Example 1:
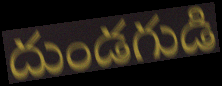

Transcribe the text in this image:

దుండగుడి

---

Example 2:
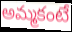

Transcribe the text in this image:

అమ్మకంటే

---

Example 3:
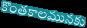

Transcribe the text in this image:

కొంతకాలమునకు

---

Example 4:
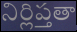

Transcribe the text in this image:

నిర్లిప్తతా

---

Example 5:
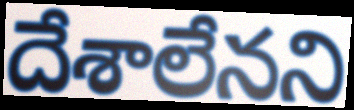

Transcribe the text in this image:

దేశాలేనని